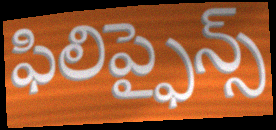
ఫిలిప్ఫైన్స్